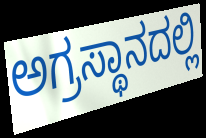
ಅಗ್ರಸ್ಥಾನದಲ್ಲಿ